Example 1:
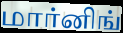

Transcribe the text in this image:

மார்னிங்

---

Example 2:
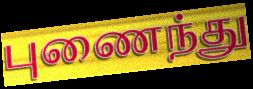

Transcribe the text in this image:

புணைந்து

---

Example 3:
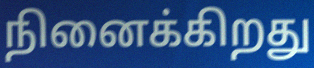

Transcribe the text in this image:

நினைக்கிறது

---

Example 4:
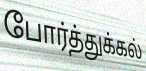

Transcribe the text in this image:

போர்த்துக்கல்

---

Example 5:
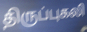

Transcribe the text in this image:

திருப்புகலி